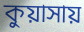
কুয়াসায়